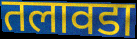
तलावडा